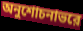
অনুশোচনাভরে